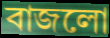
বাজলো